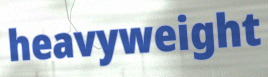
heavyweight